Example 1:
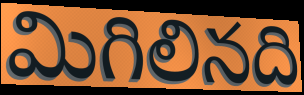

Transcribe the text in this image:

మిగిలినది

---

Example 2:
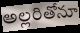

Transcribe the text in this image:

అల్లరితోనూ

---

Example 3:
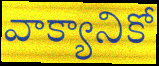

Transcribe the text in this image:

వాక్యానికో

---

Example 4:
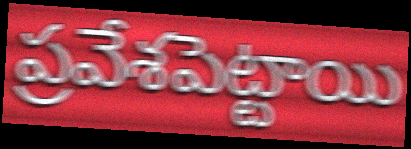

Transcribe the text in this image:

ప్రవేశపెట్టాయి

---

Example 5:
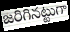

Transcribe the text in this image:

జరిగినట్టుగా